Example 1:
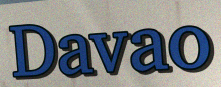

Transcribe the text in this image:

Davao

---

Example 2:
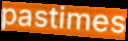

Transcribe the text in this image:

pastimes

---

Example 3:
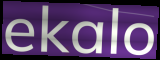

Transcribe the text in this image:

ekalo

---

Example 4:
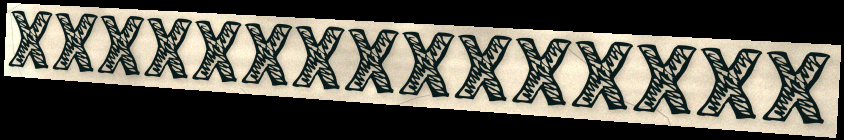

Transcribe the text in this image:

xxxxxxxxxxxxxxx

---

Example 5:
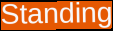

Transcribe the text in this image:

Standing